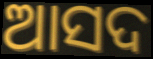
ଆସଦ